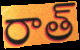
రాత్